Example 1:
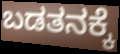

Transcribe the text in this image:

ಬಡತನಕ್ಕೆ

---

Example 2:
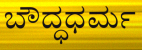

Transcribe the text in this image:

ಬೌದ್ಧಧರ್ಮ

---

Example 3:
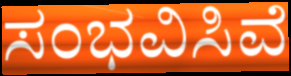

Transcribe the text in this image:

ಸಂಭವಿಸಿವೆ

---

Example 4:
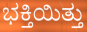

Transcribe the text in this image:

ಭಕ್ತಿಯಿತ್ತು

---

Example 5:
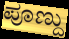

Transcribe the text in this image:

ಪೂಣ್ದು